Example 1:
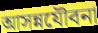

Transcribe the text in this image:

আসন্নযৌবনা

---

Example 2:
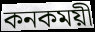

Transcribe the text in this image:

কনকময়ী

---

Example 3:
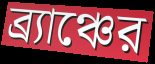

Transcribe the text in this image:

ব্র্যাঞ্চের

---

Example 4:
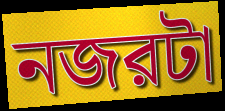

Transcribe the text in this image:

নজরটা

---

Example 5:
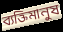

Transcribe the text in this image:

ব্যক্তিমানুষ